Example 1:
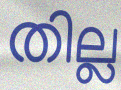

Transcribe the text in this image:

തില്ല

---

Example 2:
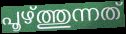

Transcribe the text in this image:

പൂഴ്ത്തുന്നത്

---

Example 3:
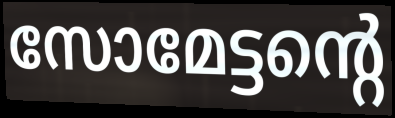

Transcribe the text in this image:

സോമേട്ടന്റെ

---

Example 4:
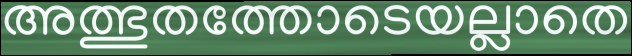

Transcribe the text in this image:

അത്ഭുതത്തോടെയല്ലാതെ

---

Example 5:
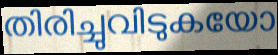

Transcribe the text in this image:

തിരിച്ചുവിടുകയോ